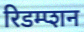
रिडम्प्शन